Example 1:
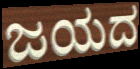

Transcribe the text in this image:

ಜಯದ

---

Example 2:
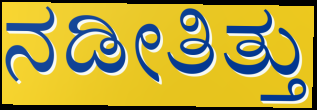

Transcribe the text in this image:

ನಡೀತಿತ್ತು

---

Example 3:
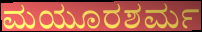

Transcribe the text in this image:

ಮಯೂರಶರ್ಮ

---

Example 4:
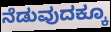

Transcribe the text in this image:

ನೆಡುವುದಕ್ಕೂ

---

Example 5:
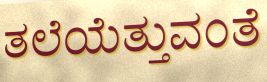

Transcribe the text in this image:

ತಲೆಯೆತ್ತುವಂತೆ